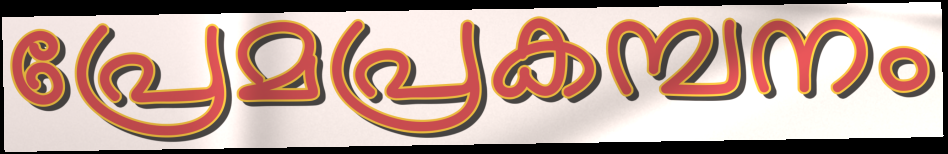
പ്രേമപ്രകമ്പനം